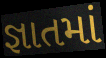
જ્ઞાતમાં